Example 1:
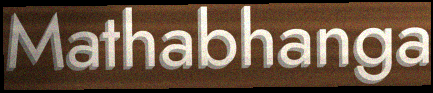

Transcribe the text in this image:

Mathabhanga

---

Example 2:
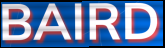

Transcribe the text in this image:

BAIRD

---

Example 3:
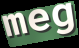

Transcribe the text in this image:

meg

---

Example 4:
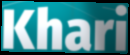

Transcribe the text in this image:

Khari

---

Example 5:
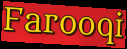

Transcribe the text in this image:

Farooqi